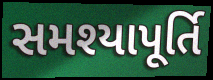
સમશ્યાપૂર્તિ